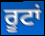
ਰੂਟਾਂ